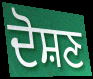
ਦੋਸ਼ਣ